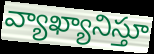
వ్యాఖ్యానిస్తూ